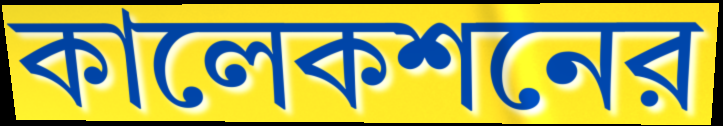
কালেকশনের